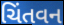
ચિંતવન